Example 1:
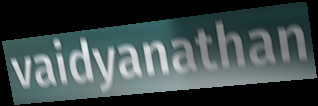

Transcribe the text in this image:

vaidyanathan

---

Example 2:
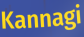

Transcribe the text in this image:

Kannagi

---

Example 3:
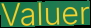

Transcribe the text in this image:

Valuer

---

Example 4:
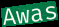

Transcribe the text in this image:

Awas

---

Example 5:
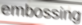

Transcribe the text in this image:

embossing